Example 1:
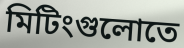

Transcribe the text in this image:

মিটিংগুলোতে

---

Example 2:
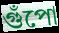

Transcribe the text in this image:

গুঁপো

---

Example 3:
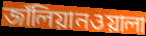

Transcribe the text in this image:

জাঁলিয়ানওয়ালা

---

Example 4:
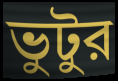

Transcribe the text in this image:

ভুটুর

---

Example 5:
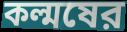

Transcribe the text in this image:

কল্মষের